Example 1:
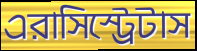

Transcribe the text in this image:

এরাসিস্ট্রেটাস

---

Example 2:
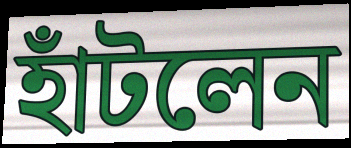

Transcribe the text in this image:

হাঁটলেন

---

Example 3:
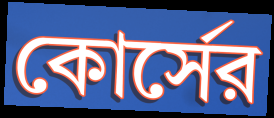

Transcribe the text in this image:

কোর্সের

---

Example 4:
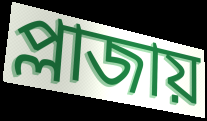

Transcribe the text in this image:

প্লাজায়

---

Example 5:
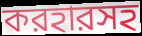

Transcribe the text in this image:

করহারসহ